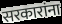
सरकारांना